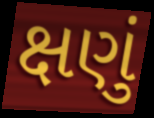
ક્ષણું